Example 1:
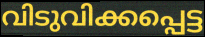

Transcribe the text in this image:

വിടുവിക്കപ്പെട്ട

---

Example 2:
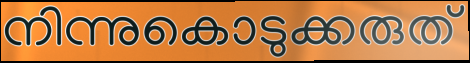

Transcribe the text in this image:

നിന്നുകൊടുക്കരുത്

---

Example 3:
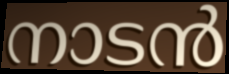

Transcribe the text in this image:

നാടൻ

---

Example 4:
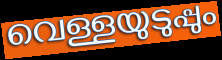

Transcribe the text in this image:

വെള്ളയുടുപ്പും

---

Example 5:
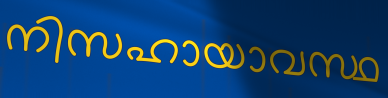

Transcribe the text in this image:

നിസഹായാവസ്ഥ